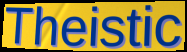
Theistic